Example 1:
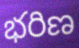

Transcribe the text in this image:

భరిణ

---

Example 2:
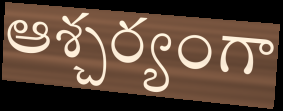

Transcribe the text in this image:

ఆశ్చర్యంగా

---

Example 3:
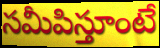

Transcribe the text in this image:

సమీపిస్తూంటే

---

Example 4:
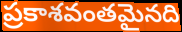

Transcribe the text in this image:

ప్రకాశవంతమైనది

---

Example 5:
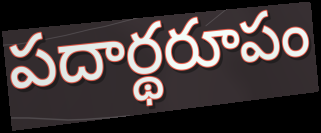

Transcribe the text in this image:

పదార్థరూపం